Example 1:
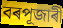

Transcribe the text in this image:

বৰপূজাৰী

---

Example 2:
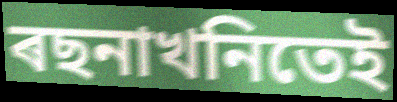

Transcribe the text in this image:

ৰছনাখনিতেই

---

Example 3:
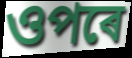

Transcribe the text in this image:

ওপৰে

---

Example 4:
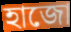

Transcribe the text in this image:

হাজো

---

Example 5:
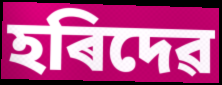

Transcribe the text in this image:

হৰিদেৱ